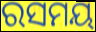
ରସମୟ